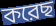
করেছ